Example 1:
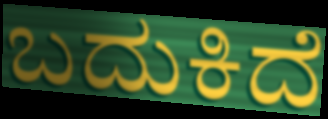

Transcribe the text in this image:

ಬದುಕಿದೆ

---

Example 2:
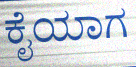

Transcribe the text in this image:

ಕೈಯಾಗ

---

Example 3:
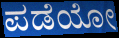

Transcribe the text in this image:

ಪಡೆಯೋ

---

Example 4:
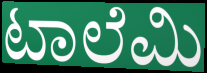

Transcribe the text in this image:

ಟಾಲೆಮಿ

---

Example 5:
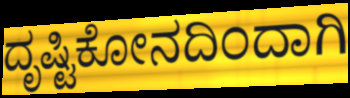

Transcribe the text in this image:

ದೃಷ್ಟಿಕೋನದಿಂದಾಗಿ